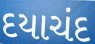
દયાચંદ